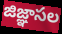
జిజ్ఞాసల